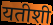
यतीशी